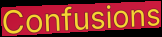
Confusions